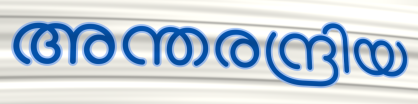
അന്തരന്ദ്രിയ